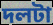
দলটা